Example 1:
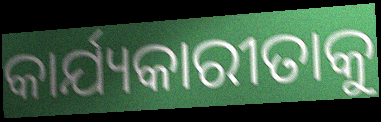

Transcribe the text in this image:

କାର୍ଯ୍ୟକାରୀତାକୁ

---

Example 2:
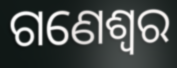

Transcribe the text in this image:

ଗଣେଶ୍ୱର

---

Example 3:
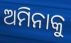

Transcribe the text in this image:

ଅମିନାକୁ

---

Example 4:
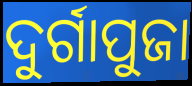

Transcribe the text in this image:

ଦୁର୍ଗାପୁଜା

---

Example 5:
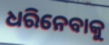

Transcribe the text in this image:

ଧରିନେବାକୁ